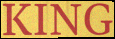
KING